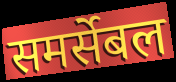
समर्सेबल